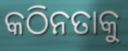
କଠିନତାକୁ